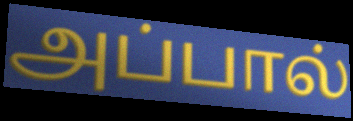
அப்பால்